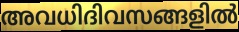
അവധിദിവസങ്ങളിൽ